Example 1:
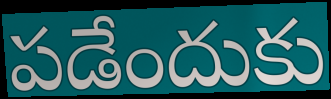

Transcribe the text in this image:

పడేందుకు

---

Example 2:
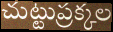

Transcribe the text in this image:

చుట్టుప్రక్కల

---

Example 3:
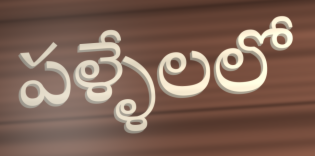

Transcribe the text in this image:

పళ్ళేలలో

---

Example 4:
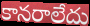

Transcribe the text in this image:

కానరాలేదు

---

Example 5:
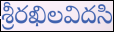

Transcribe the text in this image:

శ్రీరఖిలవిదసి